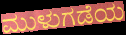
ಮುಳುಗಡೆಯ